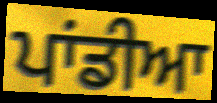
ਪਾਂਡੀਆ